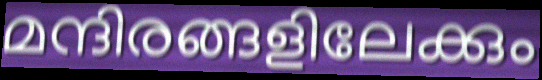
മന്ദിരങ്ങളിലേക്കും